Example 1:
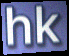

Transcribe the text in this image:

hk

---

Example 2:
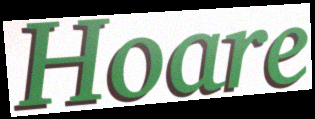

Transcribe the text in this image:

Hoare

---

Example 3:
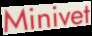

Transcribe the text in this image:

Minivet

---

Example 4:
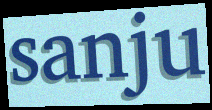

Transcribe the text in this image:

sanju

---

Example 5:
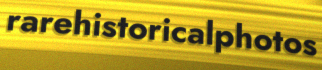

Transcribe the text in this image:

rarehistoricalphotos